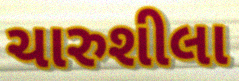
ચારુશીલા